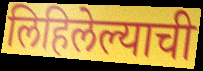
लिहिलेल्याची